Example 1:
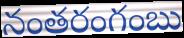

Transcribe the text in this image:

నంతరంగంబు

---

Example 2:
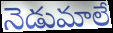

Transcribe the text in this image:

నెడుమాలే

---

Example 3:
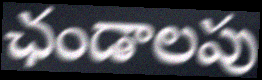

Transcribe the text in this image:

ఛండాలపు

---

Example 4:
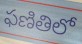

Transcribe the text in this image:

ఫణితిలో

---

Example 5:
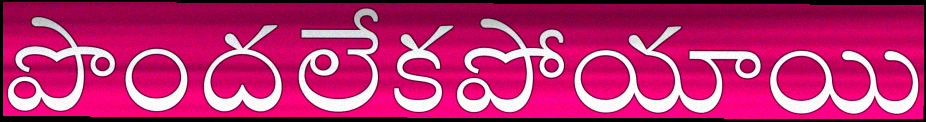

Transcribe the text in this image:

పొందలేకపోయాయి